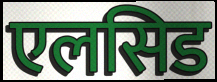
एलसिड